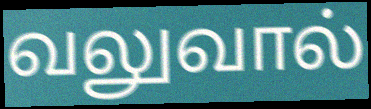
வலுவால்